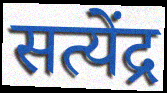
सत्येंद्र